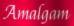
Amalgam